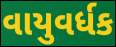
વાયુવર્ધક